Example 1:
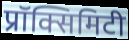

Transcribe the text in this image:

प्रॉक्सिमिटी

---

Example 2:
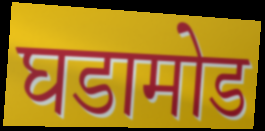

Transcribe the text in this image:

घडामोड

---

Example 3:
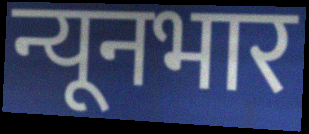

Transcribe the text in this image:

न्यूनभार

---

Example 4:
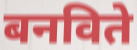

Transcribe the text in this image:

बनविते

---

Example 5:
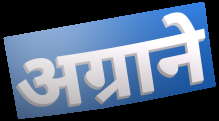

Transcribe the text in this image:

अग्राने